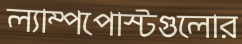
ল্যাম্পপোস্টগুলোর